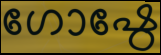
ഗോഷ്ഠേ